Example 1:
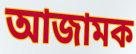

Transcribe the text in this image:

আজামক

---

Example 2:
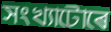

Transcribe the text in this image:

সংখ্যাটোৰে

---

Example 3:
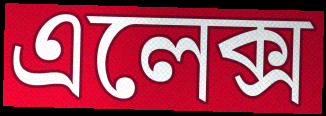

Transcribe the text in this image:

এলেক্স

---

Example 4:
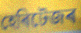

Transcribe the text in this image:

হেৰিটেজৰ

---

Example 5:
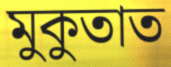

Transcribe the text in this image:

মুকুতাত